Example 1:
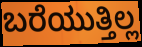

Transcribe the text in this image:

ಬರೆಯುತ್ತಿಲ್ಲ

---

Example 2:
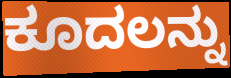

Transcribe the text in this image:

ಕೂದಲನ್ನು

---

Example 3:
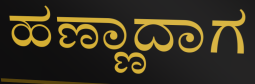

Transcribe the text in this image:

ಹಣ್ಣಾದಾಗ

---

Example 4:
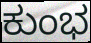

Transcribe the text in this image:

ಕುಂಭ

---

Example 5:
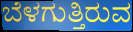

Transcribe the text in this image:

ಬೆಳಗುತ್ತಿರುವ